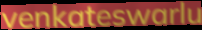
venkateswarlu